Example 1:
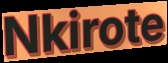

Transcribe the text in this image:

Nkirote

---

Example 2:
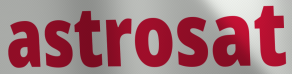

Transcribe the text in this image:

astrosat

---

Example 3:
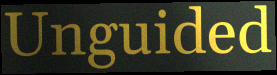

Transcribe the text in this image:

Unguided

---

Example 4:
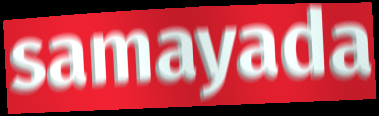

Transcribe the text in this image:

samayada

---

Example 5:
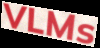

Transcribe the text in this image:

VLMs